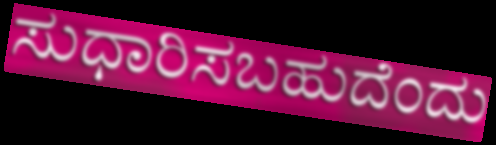
ಸುಧಾರಿಸಬಹುದೆಂದು